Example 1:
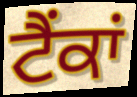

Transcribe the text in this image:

ਟੈਂਕਾਂ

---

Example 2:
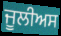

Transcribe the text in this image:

ਜੂਲੀਅਸ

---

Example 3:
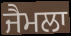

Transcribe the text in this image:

ਜੈਮਲਾ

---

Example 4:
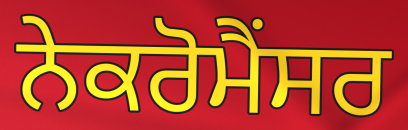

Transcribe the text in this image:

ਨੇਕਰੋਮੈਂਸਰ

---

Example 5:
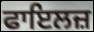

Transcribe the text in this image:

ਫਾਇਲਜ਼